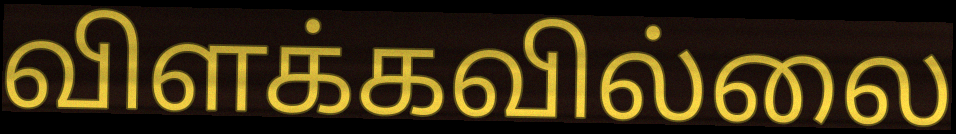
விளக்கவில்லை